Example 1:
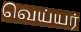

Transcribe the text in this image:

வெய்யர்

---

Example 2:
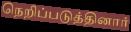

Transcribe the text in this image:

நெறிப்படுத்தினார்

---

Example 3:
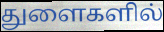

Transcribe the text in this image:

துளைகளில்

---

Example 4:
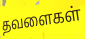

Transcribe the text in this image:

தவளைகள்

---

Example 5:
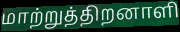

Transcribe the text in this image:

மாற்றுத்திறனாளி